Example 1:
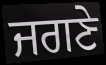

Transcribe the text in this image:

ਜਗਣੇ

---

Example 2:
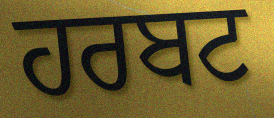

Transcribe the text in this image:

ਹਰਬਟ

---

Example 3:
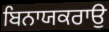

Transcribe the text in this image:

ਬਿਨਾਯਕਰਾਉ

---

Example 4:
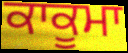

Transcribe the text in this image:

ਕਾਕੂਮਾ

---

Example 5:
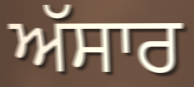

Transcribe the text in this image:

ਅੱਸਾਰ